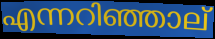
എന്നറിഞ്ഞാല്